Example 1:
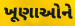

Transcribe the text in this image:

ખૂણાઓને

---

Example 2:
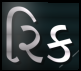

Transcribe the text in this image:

રિક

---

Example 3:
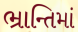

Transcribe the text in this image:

ભ્રાન્તિમાં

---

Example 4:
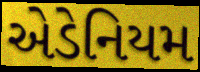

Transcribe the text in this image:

એડેનિયમ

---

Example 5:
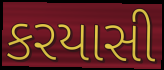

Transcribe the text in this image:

કરયાસી